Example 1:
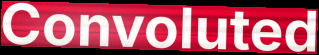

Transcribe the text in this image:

Convoluted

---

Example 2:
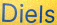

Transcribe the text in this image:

Diels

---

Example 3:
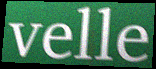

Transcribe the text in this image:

velle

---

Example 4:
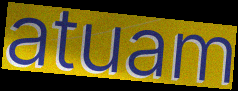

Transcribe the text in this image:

atuam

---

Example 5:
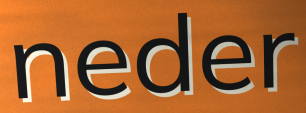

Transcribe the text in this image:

neder